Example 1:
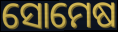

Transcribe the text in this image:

ସୋମେଷ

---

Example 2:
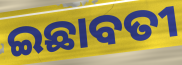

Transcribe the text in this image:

ଇଛାବତୀ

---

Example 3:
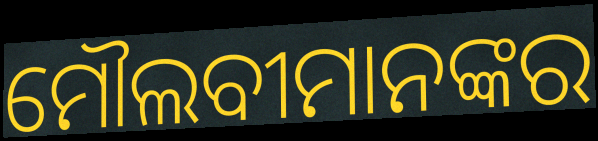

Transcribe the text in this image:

ମୌଲବୀମାନଙ୍କର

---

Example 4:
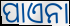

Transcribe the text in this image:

ପାଏନା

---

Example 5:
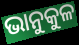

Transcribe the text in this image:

ଭାନୁକୁଳ